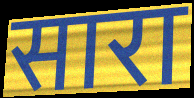
सारा